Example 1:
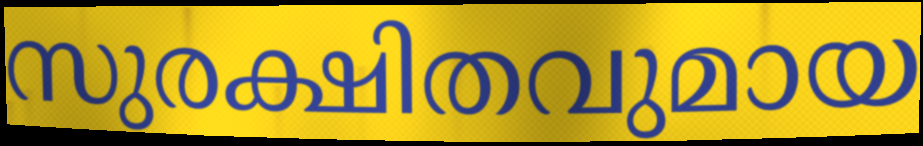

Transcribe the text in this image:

സുരക്ഷിതവുമായ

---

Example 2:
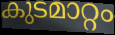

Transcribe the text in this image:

കുടമാറ്റം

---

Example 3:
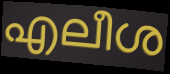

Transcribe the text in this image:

എലീശ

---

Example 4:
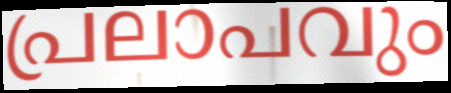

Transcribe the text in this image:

പ്രലാപവും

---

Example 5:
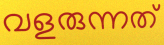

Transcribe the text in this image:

വളരുന്നത്